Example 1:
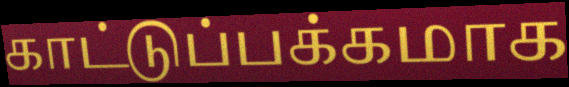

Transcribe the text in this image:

காட்டுப்பக்கமாக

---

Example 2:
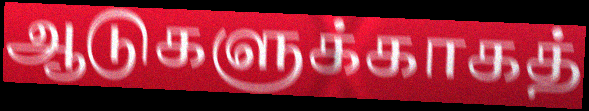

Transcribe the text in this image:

ஆடுகளுக்காகத்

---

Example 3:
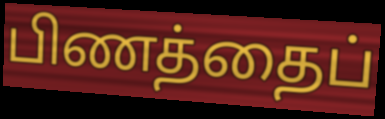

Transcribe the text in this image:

பிணத்தைப்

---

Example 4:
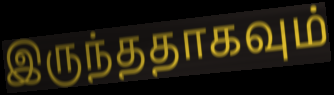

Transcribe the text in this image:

இருந்ததாகவும்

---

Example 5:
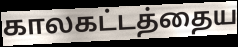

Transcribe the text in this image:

காலகட்டத்தைய